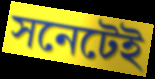
সনেটেই